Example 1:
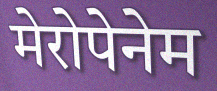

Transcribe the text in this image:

मेरोपेनेम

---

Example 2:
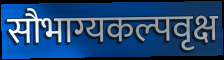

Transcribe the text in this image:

सौभाग्यकल्पवृक्ष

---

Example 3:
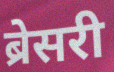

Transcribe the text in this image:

ब्रेसरी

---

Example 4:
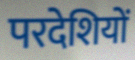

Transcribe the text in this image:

परदेशियों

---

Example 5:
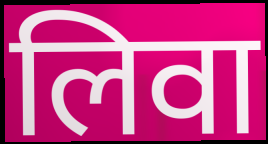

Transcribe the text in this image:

लिवा